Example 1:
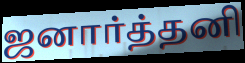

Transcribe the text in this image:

ஜனார்த்தனி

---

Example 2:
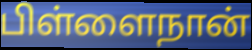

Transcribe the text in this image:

பிள்ளைநான்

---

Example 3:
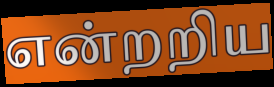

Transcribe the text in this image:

என்றறிய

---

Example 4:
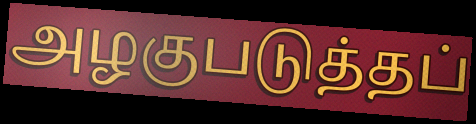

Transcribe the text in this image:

அழகுபடுத்தப்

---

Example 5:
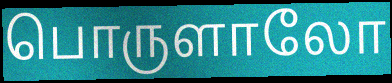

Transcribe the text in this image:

பொருளாலோ